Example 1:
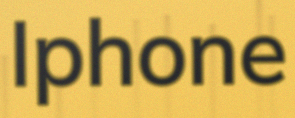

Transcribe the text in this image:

Iphone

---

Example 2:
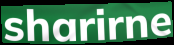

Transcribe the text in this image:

sharirne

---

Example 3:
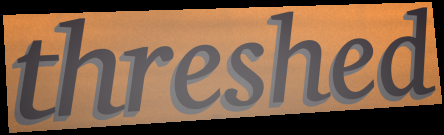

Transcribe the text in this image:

threshed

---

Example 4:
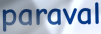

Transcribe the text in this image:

paraval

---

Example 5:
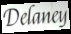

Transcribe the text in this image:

Delaney